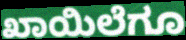
ಖಾಯಿಲೆಗೂ